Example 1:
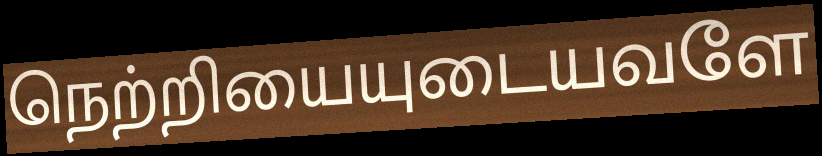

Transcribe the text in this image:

நெற்றியையுடையவளே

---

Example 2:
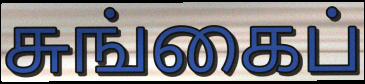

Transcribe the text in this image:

சுங்கைப்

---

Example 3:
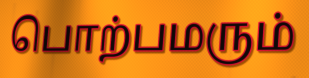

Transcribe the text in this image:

பொற்பமரும்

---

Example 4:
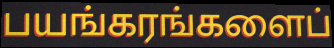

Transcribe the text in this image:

பயங்கரங்களைப்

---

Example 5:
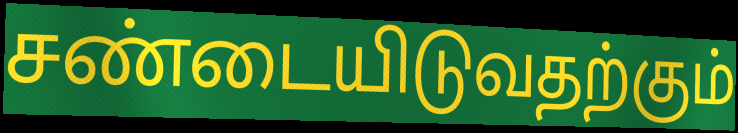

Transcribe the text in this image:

சண்டையிடுவதற்கும்